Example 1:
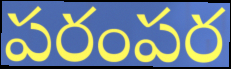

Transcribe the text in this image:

పరంపర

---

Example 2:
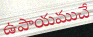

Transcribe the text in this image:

ఉపాయముచే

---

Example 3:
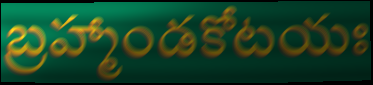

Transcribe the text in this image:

బ్రహ్మాండకోటయః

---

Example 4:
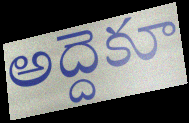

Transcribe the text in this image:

అద్దెకూ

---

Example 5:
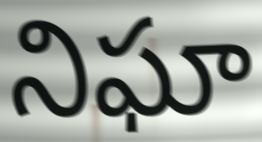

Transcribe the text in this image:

నిఘా